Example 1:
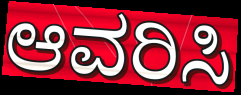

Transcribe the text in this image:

ಆವರಿಸಿ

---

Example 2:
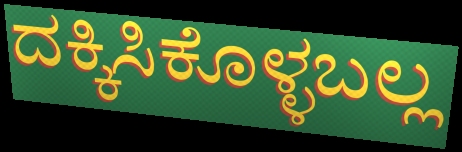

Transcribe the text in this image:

ದಕ್ಕಿಸಿಕೊಳ್ಳಬಲ್ಲ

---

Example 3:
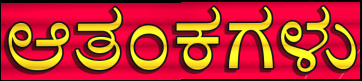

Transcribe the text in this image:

ಆತಂಕಗಳು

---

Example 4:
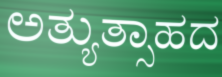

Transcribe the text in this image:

ಅತ್ಯುತ್ಸಾಹದ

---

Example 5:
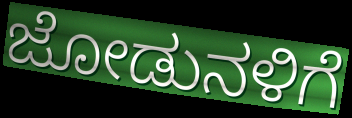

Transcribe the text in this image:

ಜೋಡುನಳಿಗೆ